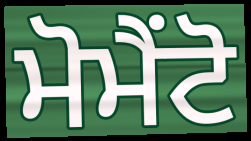
ਮੋਮੈਂਟੋ